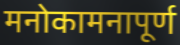
मनोकामनापूर्ण